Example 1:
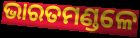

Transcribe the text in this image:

ଭାରତମଣ୍ଡଳେ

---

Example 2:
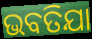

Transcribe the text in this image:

ଭବତିଯା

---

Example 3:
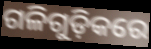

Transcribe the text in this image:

ଗଳିଗୁଡ଼ିକରେ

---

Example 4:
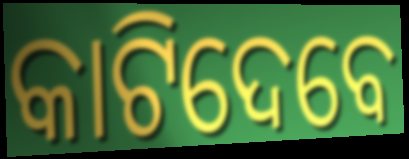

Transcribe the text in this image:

କାଟିଦେବେ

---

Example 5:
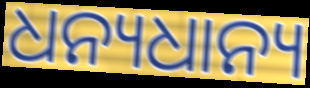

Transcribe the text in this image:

ଧନ୍ୟଧାନ୍ୟ